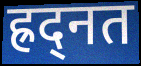
ह्रद्नत